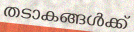
തടാകങ്ങൾക്ക്